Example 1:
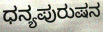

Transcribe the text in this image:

ಧನ್ಯಪುರುಷನ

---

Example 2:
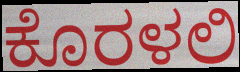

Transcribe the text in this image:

ಕೊರಳಲಿ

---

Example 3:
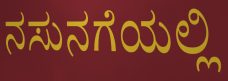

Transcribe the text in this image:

ನಸುನಗೆಯಲ್ಲಿ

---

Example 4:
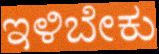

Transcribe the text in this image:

ಇಳಿಬೇಕು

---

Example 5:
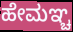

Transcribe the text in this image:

ಹೇಮಞ್ಚ